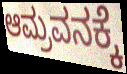
ಆಮ್ರವನಕ್ಕೆ